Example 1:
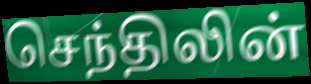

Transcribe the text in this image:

செந்திலின்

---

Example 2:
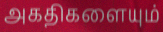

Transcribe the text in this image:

அகதிகளையும்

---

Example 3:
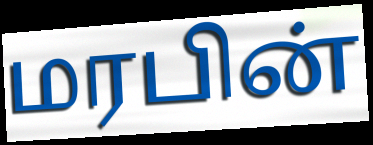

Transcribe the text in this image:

மரபின்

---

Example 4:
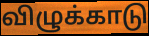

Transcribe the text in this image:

விழுக்காடு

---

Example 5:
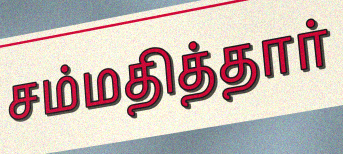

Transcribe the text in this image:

சம்மதித்தார்